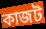
কাজট